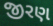
જીરણ